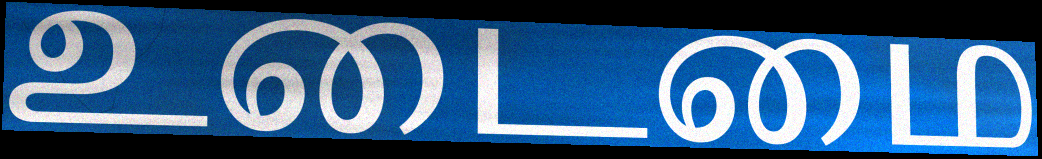
உடைமை